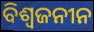
ବିଶ୍ବଜନୀନ